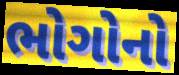
ભોગોનો